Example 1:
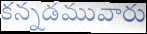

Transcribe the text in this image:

కన్నడమువారు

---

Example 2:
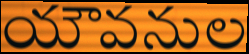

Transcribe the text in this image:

యౌవనుల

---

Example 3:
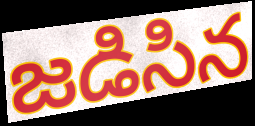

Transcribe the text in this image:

జడిసిన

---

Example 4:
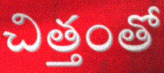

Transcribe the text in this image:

చిత్తంతో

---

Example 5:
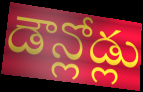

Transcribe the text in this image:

డౌన్లోడ్లు